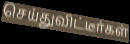
செய்துவிட்டீர்கள்